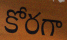
కోరగా